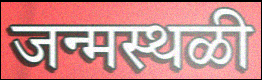
जन्मस्थळी